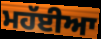
ਮਹੱਈਆ